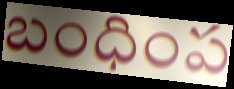
బంధింప